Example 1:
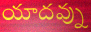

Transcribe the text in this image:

యాదవ్ను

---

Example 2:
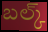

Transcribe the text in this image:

బల్క్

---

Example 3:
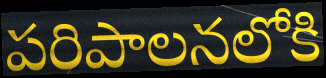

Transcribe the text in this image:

పరిపాలనలోకి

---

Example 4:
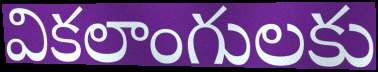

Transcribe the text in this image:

వికలాంగులకు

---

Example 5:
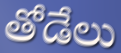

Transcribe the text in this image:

తోడేలు